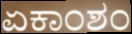
ಏಕಾಂಶಂ